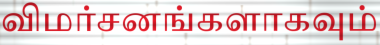
விமர்சனங்களாகவும்